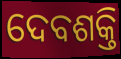
ଦେବଶକ୍ତି